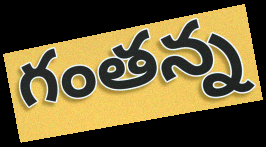
గంతన్న